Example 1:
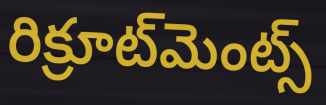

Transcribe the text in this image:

రిక్రూట్‌మెంట్స్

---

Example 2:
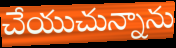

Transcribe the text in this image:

చేయుచున్నాను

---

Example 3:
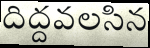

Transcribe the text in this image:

దిద్దవలసిన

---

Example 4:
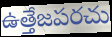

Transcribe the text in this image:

ఉత్తేజపరచు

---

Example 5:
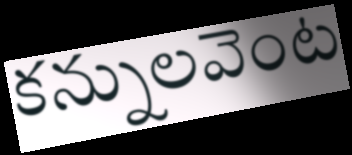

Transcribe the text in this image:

కన్నులవెంట